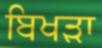
ਬਿਖੜਾ